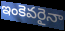
ఇంకెవరైనా